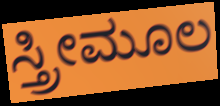
ಸ್ತ್ರೀಮೂಲ